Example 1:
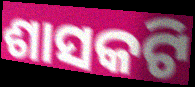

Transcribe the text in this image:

ଶାସକଟି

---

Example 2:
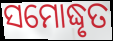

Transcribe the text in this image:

ସମୋଦ୍ଧୃତ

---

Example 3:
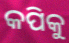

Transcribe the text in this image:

କପିକୁ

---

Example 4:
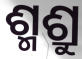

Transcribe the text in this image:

ଶ୍ମଶ୍ରୁ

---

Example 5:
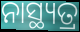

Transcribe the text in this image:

ନାସ୍ଥ୍ୟତ୍ର